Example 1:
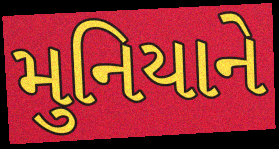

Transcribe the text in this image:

મુનિયાને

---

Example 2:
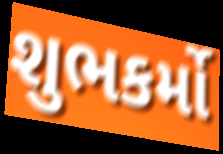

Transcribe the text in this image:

શુભકર્મો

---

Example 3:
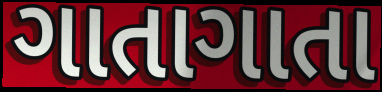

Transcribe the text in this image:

ગાતાગાતા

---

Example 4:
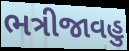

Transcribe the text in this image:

ભત્રીજાવહુ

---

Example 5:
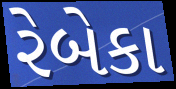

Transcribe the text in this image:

રેબેકા